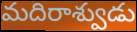
మదిరాశ్వుడు